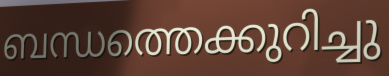
ബന്ധത്തെക്കുറിച്ചു